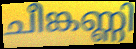
ചീങ്കണ്ണി